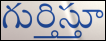
గుర్తిస్తూ